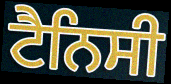
ਟੈਨਿਸੀ